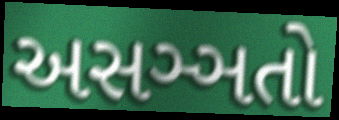
અસઞ્ઞતો